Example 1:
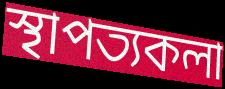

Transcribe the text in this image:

স্থাপত্যকলা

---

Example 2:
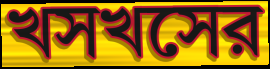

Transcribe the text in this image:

খসখসের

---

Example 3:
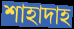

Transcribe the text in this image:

শাহাদাহ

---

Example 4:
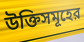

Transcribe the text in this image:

উক্তিসমূহের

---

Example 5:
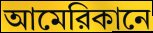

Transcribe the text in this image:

আমেরিকানে